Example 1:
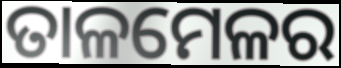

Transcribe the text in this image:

ତାଳମେଳର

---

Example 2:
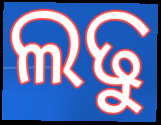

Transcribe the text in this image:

ଲଢୁ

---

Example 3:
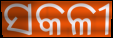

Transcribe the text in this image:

ସକଳୀ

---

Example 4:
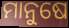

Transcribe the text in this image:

ମାନୁଷେ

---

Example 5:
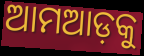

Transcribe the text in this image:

ଆମଆଡ଼କୁ